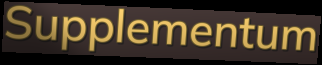
Supplementum